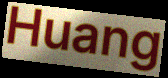
Huang